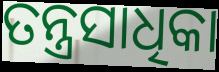
ତନ୍ତ୍ରସାଧିକା